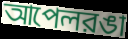
আপেলরঙা